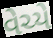
વેચ્યે